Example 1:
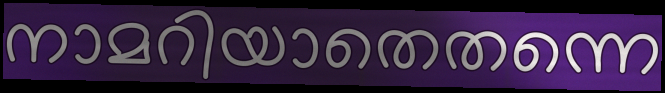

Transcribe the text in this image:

നാമറിയാതെതന്നെ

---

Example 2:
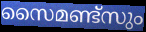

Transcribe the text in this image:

സൈമണ്ട്സും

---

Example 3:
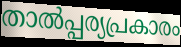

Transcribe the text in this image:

താൽപ്പര്യപ്രകാരം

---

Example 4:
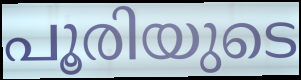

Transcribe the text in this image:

പൂരിയുടെ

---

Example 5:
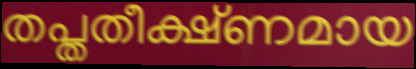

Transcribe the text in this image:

തപ്തതീക്ഷ്ണമായ